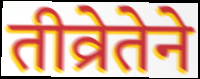
तीव्रेतेने